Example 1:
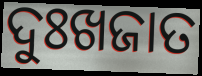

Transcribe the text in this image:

ଦୁଃଖଜାତ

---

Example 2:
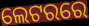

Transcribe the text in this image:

ଲେଟରରେ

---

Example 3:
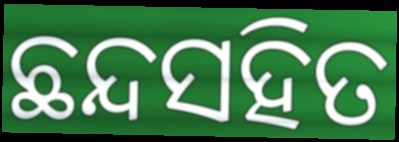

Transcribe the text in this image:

ଛନ୍ଦସହିତ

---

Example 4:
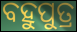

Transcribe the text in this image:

ବହୁପୁତ୍ର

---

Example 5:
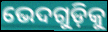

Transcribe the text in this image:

ଭେଦଗୁଡ଼ିକୁ